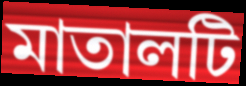
মাতালটি